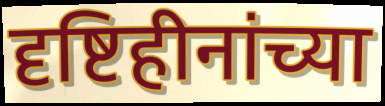
दृष्टिहीनांच्या